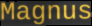
Magnus